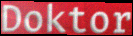
Doktor